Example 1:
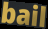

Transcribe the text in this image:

bail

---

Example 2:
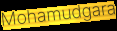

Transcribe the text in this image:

Mohamudgara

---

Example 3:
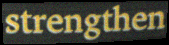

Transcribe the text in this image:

strengthen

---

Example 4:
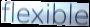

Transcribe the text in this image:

flexible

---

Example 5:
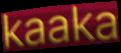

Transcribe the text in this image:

kaaka